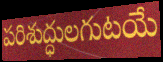
పరిశుద్ధులగుటయే